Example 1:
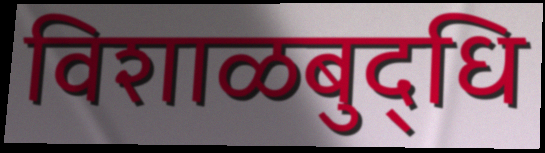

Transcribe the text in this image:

विशाळबुद्धि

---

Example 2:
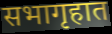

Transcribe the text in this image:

सभागृहात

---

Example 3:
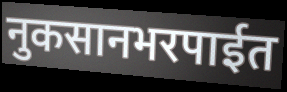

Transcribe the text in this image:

नुकसानभरपाईत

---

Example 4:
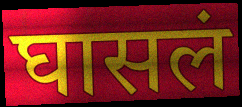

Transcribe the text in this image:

घासलं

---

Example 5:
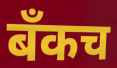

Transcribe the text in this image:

बँकच